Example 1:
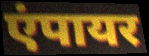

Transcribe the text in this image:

एंपायर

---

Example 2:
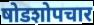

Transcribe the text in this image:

षोडशोपचार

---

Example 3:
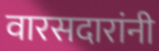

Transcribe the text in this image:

वारसदारांनी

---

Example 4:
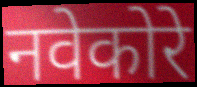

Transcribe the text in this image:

नवेकोरे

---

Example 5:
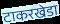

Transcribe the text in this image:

टाकरखेडा